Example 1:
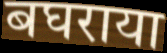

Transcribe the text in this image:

बघराया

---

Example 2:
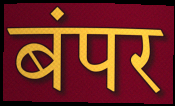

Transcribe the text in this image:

बंपर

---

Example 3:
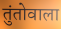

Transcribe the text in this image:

तुंतोवाला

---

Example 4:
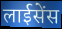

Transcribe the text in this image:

लाईसेंस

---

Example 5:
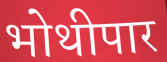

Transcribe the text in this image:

भोथीपार